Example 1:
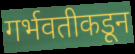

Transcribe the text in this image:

गर्भवतीकडून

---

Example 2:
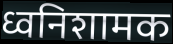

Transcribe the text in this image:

ध्वनिशामक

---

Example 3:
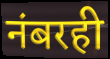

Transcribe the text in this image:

नंबरही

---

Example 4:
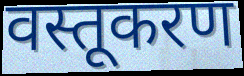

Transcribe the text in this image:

वस्तूकरण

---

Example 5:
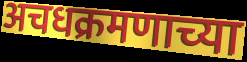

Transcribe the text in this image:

अचधक्रमणाच्या